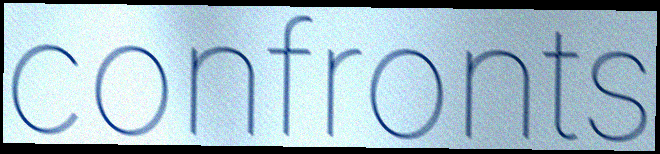
confronts